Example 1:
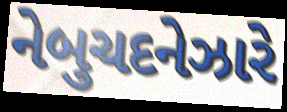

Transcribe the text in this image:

નેબુચદનેઝારે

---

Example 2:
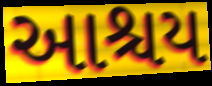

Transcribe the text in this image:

આશ્ચય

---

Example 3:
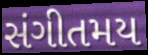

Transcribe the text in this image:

સંગીતમય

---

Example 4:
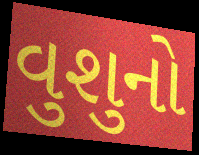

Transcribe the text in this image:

વુશુનો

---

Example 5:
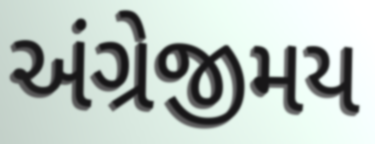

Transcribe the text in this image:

અંગ્રેજીમય